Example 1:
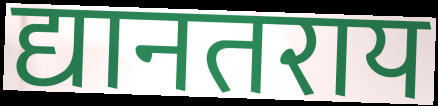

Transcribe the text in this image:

द्यानतराय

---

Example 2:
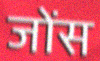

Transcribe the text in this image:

जोंस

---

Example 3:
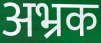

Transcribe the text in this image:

अभ्रक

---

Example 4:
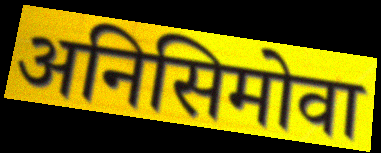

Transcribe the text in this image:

अनिसिमोवा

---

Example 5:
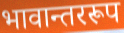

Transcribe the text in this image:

भावान्तररूप